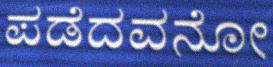
ಪಡೆದವನೋ